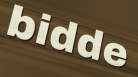
bidde